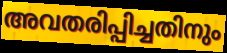
അവതരിപ്പിച്ചതിനും